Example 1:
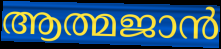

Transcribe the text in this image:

ആത്മജാൻ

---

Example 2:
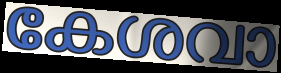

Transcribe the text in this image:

കേശവാ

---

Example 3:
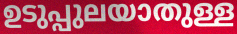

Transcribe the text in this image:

ഉടുപ്പുലയാതുള്ള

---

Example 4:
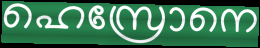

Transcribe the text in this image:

ഹെസ്രോനെ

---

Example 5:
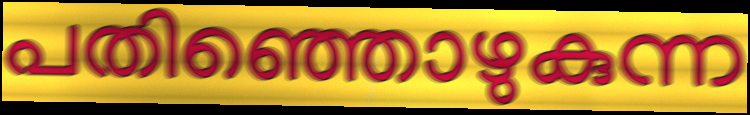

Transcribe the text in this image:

പതിഞ്ഞൊഴുകുന്ന